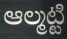
ఆల్మట్టి